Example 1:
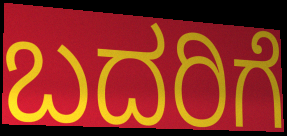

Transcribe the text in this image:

ಬದರಿಗೆ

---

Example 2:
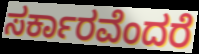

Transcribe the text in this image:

ಸರ್ಕಾರವೆಂದರೆ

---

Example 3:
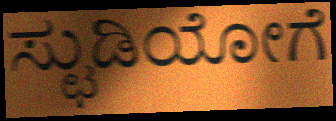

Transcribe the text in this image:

ಸ್ಟುಡಿಯೋಗೆ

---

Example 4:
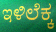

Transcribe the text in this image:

ಇಳಿಲೆಕ್ಕ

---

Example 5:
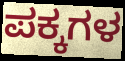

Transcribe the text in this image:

ಪಕ್ಕಗಳ